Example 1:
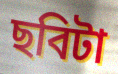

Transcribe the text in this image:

ছবিটা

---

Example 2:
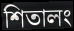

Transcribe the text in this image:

শিতালং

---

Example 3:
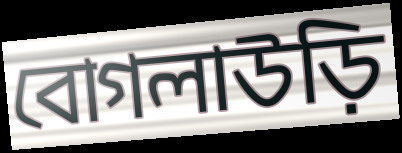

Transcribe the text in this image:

বোগলাউড়ি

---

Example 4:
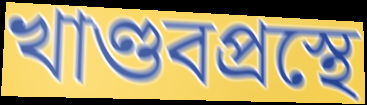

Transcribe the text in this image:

খাণ্ডবপ্রস্থে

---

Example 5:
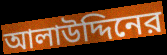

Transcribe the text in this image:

আলাউদ্দিনের